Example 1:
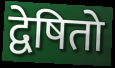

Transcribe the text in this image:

द्वेषितो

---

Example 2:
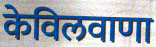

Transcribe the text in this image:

केविलवाणा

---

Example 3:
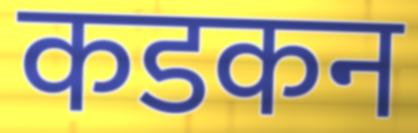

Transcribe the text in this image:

कडकन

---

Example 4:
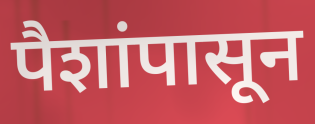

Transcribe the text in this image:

पैशांपासून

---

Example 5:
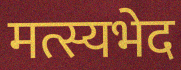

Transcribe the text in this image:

मत्स्यभेद